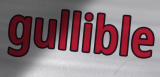
gullible